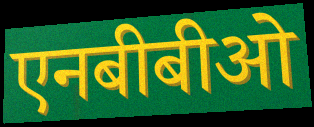
एनबीबीओ